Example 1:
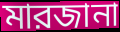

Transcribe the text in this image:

মারজানা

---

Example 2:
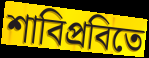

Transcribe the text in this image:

শাবিপ্রবিতে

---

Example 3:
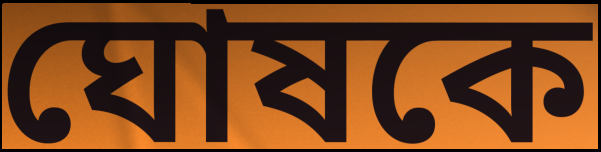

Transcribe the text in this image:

ঘোষকে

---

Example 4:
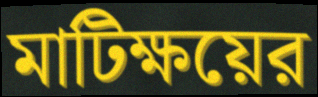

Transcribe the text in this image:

মাটিক্ষয়ের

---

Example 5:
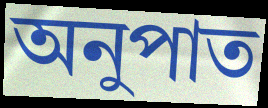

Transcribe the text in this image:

অনুপাত